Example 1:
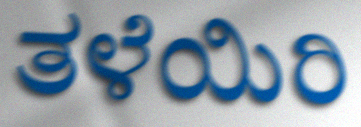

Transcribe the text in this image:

ತಳೆಯಿರಿ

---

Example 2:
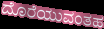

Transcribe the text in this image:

ದೊರೆಯುವಂತಹ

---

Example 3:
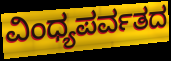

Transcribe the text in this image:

ವಿಂಧ್ಯಪರ್ವತದ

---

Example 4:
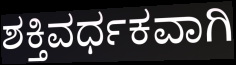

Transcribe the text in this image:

ಶಕ್ತಿವರ್ಧಕವಾಗಿ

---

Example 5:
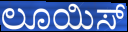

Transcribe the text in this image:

ಲೂಯಿಸ್